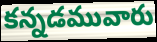
కన్నడమువారు